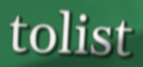
tolist